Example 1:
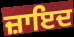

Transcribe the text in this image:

ਜ਼ਾਇਦ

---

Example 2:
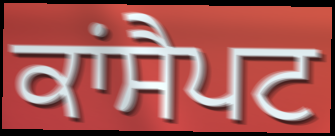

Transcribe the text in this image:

ਕਾਂਸੈਪਟ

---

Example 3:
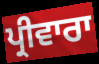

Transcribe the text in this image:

ਪ੍ਰੀਵਾਰਾ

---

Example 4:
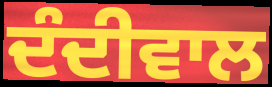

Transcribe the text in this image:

ਦੰਦੀਵਾਲ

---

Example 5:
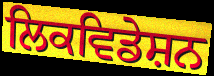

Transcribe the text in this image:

ਲਿਕਵਿਡੇਸ਼ਨ